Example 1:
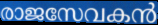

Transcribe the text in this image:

രാജസേവകൻ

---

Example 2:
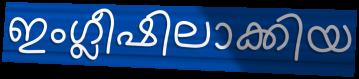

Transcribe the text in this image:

ഇംഗ്ലീഷിലാക്കിയ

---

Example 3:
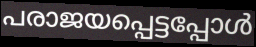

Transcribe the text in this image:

പരാജയപ്പെട്ടപ്പോൾ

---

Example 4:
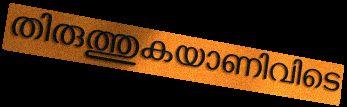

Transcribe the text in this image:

തിരുത്തുകയാണിവിടെ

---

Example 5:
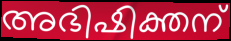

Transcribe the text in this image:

അഭിഷിക്തന്